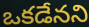
ఒకడేనని